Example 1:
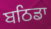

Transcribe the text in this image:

ਬਠਿਡਾ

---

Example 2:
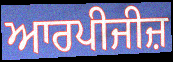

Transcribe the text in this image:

ਆਰਪੀਜੀਜ਼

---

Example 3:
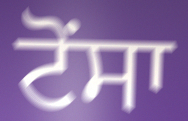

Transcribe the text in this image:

ਟੋਂਸਾ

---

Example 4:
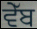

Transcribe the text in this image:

ਵੇੱਬ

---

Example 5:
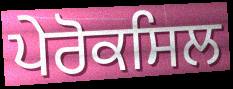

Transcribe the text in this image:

ਪੇਰੋਕਸਿਲ